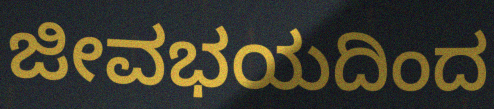
ಜೀವಭಯದಿಂದ